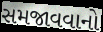
સમજાવવાનો